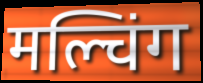
मल्चिंग